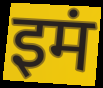
इमं